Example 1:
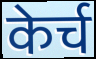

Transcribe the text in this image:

केर्च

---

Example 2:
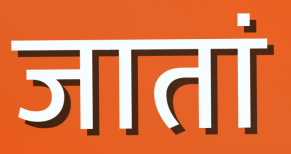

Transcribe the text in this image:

जातां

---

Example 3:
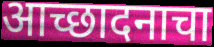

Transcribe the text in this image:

आच्छादनाचा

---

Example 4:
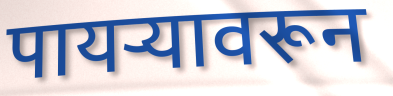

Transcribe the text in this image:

पायऱ्यावरून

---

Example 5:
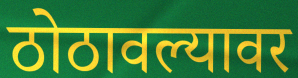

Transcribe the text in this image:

ठोठावल्यावर